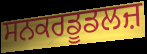
ਸਨਕਰਡੂਡਲਜ਼